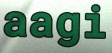
aagi